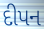
દીપન